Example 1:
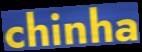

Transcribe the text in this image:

chinha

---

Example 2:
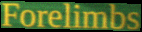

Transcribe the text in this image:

Forelimbs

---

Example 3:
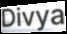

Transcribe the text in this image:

Divya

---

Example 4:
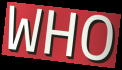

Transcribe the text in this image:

WHO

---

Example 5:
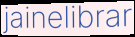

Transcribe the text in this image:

jainelibrar